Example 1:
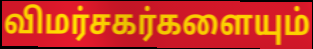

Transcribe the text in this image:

விமர்சகர்களையும்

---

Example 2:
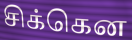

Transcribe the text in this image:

சிக்கென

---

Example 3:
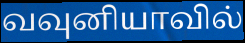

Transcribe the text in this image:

வவுனியாவில்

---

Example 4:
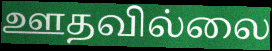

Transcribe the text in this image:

ஊதவில்லை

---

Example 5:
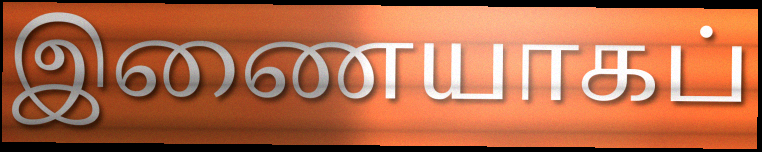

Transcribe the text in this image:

இணையாகப்